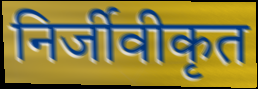
निर्जीवीकृत